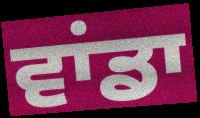
ਵਾਂਡਾ